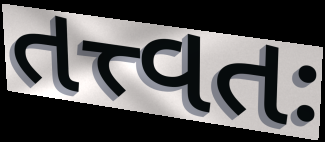
તત્ત્વતઃ